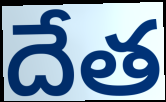
దేత